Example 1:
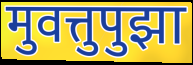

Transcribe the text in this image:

मुवत्तुपुझा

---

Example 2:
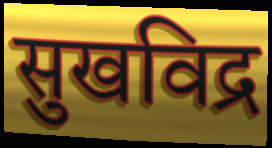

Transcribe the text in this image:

सुखविद्र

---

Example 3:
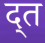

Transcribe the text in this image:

द्त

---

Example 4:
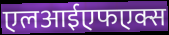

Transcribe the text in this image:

एलआईएफएक्स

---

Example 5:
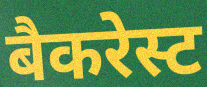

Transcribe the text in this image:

बैकरेस्ट